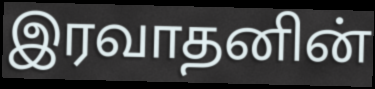
இரவாதனின்